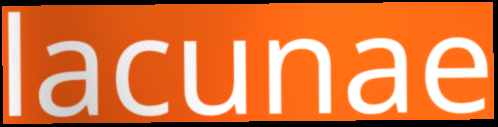
lacunae